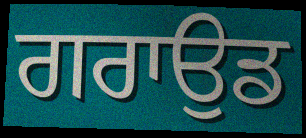
ਗਰਾਉਡ